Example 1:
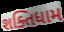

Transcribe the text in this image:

શક્તિધામ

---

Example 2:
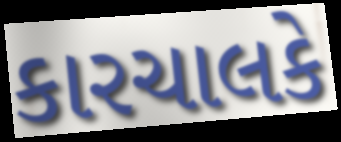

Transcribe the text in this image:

કારચાલકે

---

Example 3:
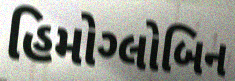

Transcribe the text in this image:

હિમોગ્લોબિન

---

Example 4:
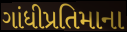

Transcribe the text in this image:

ગાંધીપ્રતિમાના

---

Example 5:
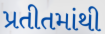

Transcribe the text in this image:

પ્રતીતમાંથી